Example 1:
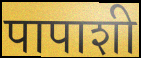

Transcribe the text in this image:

पापाशी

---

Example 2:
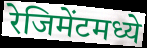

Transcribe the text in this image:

रेजिमेंटमध्ये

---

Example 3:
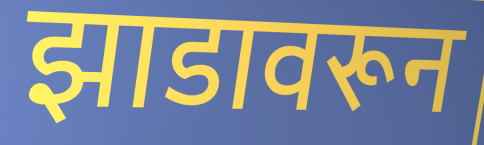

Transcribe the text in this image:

झाडावरून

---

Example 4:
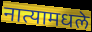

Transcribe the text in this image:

नात्यामधले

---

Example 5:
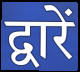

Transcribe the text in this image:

द्वारें